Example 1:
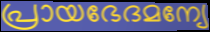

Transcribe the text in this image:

പ്രായഭേദമന്യേ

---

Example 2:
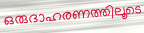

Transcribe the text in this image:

ഒരുദാഹരണത്തിലൂടെ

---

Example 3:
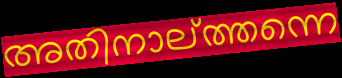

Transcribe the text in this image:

അതിനാല്ത്തന്നെ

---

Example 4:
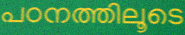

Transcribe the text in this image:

പഠനത്തിലൂടെ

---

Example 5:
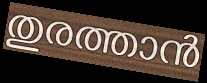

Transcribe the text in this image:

തുരത്താൻ